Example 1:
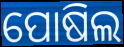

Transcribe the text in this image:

ପୋଷିଲ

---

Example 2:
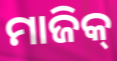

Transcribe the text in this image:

ମାଜିକ୍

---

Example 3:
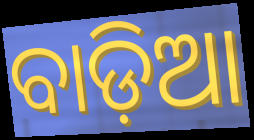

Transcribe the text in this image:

ବାଡ଼ିଆ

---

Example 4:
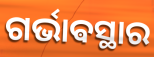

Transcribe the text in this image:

ଗର୍ଭାଵସ୍ଥାର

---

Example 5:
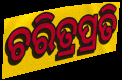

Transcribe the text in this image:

ଚରିତ୍ରପ୍ରତି